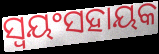
ସ୍ଵୟଂସହାୟକ